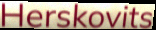
Herskovits